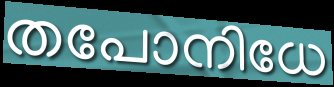
തപോനിധേ